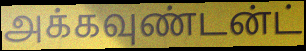
அக்கவுண்டன்ட்